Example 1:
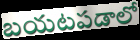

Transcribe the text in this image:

బయటపడాలో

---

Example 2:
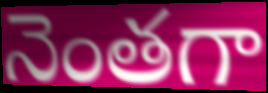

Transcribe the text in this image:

నెంతగా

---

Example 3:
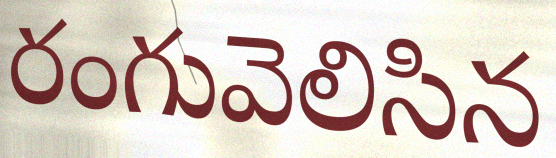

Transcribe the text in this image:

రంగువెలిసిన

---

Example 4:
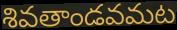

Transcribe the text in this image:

శివతాండవమట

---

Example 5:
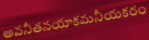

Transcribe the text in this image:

అవనీతనయాకమనీయకరం